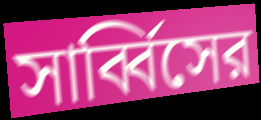
সার্ব্বিসের